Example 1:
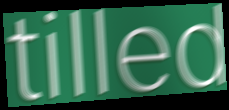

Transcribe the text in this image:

tilled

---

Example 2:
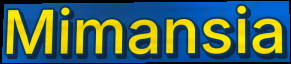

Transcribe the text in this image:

Mimansia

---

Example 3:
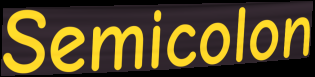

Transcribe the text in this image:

Semicolon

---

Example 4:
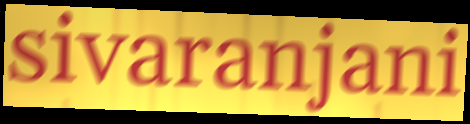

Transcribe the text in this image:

sivaranjani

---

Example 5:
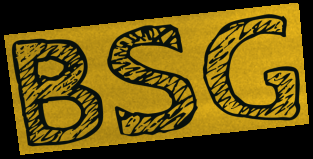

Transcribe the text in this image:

BSG